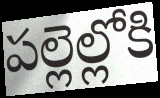
పల్లెల్లోకి